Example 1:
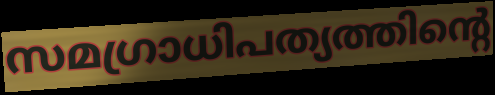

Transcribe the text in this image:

സമഗ്രാധിപത്യത്തിന്റെ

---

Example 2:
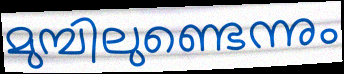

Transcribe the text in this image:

മുമ്പിലുണ്ടെന്നും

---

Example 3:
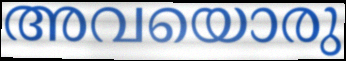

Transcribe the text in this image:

അവയൊരു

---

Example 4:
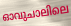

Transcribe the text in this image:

ഓവുചാലിലെ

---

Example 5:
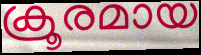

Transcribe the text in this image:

ക്രൂരമായ